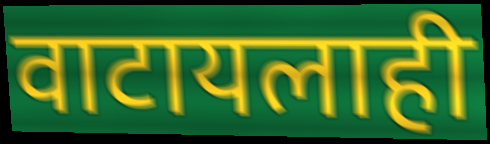
वाटायलाही